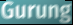
Gurung